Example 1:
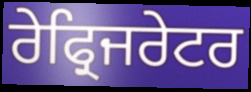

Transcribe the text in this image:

ਰੇਫ੍ਰਿਜਰੇਟਰ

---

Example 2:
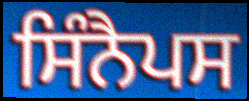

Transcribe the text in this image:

ਸਿੰਨੈਪਸ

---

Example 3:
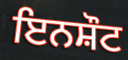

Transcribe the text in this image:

ਇਨਸ਼ੌਟ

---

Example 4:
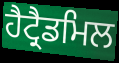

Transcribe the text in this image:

ਹੈਟ੍ਰੈਡਮਿਲ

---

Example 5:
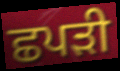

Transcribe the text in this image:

ਛਪੜੀ